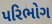
પરિભોગ